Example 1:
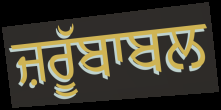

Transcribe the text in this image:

ਜ਼ਰੂੱਬਾਬਲ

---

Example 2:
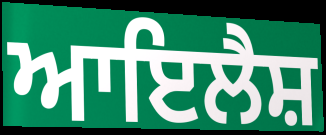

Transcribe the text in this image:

ਆਇਲੈਸ਼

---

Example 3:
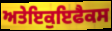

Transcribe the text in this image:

ਅਤੇਇਕੁਇਫੈਕਸ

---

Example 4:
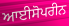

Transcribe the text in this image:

ਆਈਸੋਪਰੀਨ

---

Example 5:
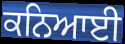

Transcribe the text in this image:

ਕਨਿਆਈ